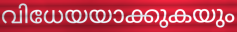
വിധേയയാക്കുകയും